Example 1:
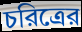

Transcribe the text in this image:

চরিত্রের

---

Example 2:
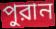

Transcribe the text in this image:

পুরান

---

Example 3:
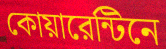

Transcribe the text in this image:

কোয়ারেন্টিনে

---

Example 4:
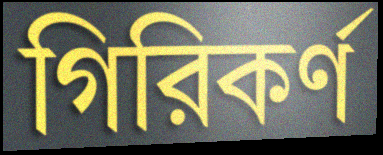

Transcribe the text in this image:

গিরিকর্ণ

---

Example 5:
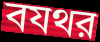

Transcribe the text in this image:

বযথর